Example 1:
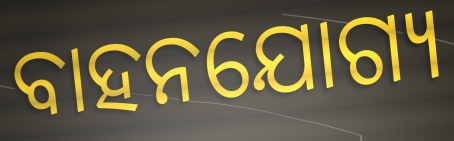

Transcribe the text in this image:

ବାହନଯୋଗ୍ୟ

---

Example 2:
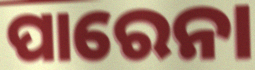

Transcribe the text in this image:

ପାରେନା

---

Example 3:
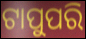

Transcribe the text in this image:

ଟାପୁପରି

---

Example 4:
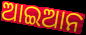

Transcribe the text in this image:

ଆଇଆନ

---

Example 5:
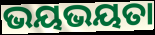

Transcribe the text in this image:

ଭୟଭୟତା